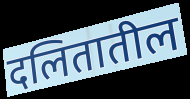
दलितातील